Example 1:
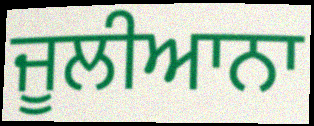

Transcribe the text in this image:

ਜੂਲੀਆਨਾ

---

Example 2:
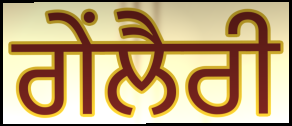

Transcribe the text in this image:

ਗੇਂਲੈਰੀ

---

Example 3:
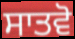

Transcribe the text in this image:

ਸਾਤਵੋ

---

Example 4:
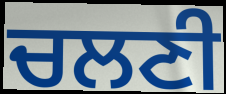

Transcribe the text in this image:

ਚਲਣੀ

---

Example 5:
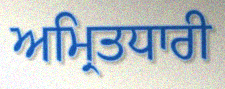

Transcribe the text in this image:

ਅਮ੍ਰਿਤਧਾਰੀ